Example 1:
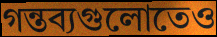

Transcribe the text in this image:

গন্তব্যগুলোতেও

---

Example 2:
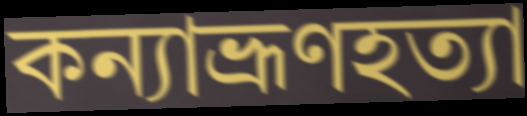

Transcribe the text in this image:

কন্যাভ্রূণহত্যা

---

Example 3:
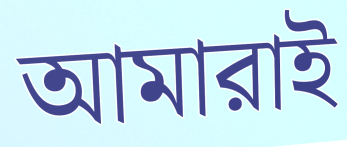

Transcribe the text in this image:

আমারাই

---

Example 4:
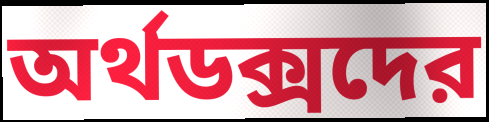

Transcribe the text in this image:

অর্থডক্সদের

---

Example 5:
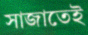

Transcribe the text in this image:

সাজাতেই